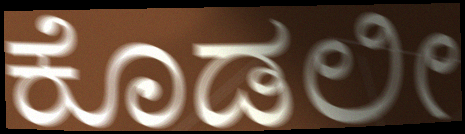
ಕೊಡಲೀ